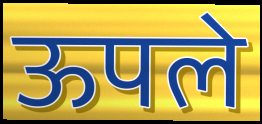
ऊपले